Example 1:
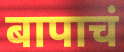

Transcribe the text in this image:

बापाचं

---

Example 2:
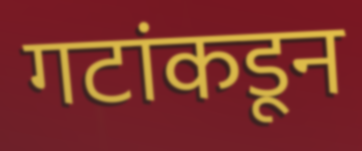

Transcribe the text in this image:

गटांकडून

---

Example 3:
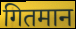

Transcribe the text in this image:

गितमान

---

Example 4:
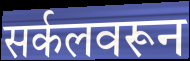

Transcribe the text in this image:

सर्कलवरून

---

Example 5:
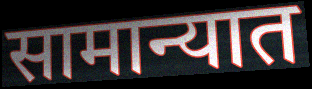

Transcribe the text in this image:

सामान्यात